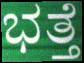
ಭತ್ತೆ